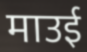
माउई